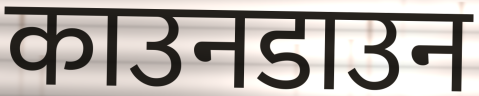
काउनडाउन